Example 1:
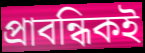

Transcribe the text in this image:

প্রাবন্ধিকই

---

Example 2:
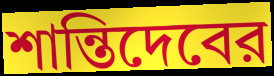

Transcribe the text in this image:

শান্তিদেবের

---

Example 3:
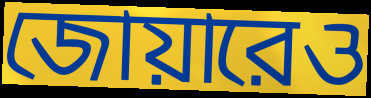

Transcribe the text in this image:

জোয়ারেও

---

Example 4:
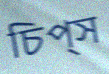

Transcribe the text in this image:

চিপ্‌স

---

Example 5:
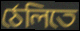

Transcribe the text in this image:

ঠেলিতে